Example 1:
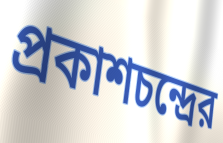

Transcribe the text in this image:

প্রকাশচন্দ্রের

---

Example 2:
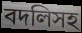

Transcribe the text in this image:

বদলিসহ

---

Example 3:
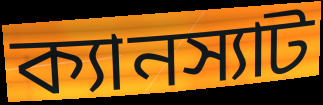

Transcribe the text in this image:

ক্যানস্যাট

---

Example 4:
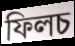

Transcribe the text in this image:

ফিলচ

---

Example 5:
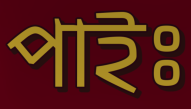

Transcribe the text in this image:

পাইঃ